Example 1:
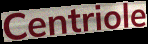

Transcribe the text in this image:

Centriole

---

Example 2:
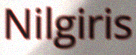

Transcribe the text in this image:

Nilgiris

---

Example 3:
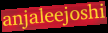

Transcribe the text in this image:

anjaleejoshi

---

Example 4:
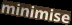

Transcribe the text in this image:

minimise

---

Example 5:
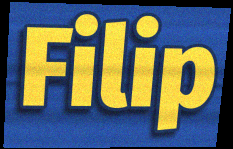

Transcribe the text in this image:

Filip